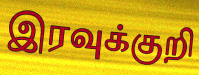
இரவுக்குறி